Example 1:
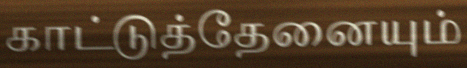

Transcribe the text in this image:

காட்டுத்தேனையும்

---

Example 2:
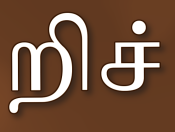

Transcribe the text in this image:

றிச்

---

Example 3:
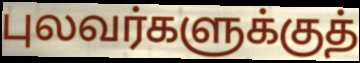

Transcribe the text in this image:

புலவர்களுக்குத்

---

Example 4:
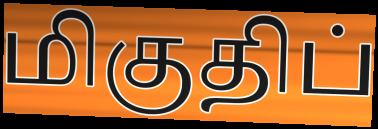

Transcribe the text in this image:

மிகுதிப்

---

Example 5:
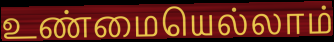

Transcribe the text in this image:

உண்மையெல்லாம்